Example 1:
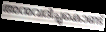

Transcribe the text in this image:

അനുവദിച്ചുകൊണ്ട്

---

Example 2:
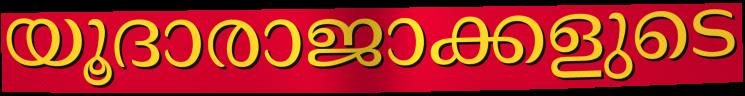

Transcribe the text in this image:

യൂദാരാജാക്കളുടെ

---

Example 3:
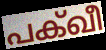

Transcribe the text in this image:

പക്ഖീ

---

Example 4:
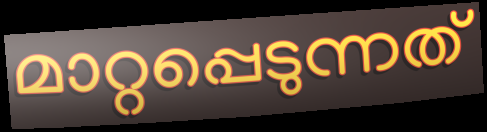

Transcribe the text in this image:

മാറ്റപ്പെടുന്നത്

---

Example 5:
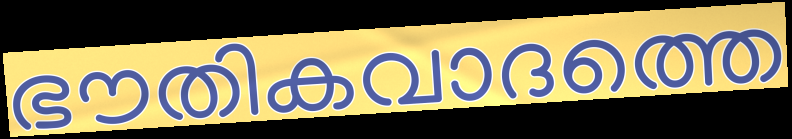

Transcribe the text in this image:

ഭൗതികവാദത്തെ